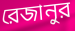
রেজানুর